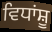
ਵਿਧਾਂਸ਼ੂ